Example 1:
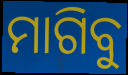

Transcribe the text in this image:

ମାଗିବୁ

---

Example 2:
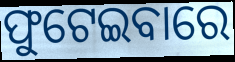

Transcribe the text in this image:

ଫୁଟେଇବାରେ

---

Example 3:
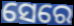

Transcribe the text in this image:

ସେରେ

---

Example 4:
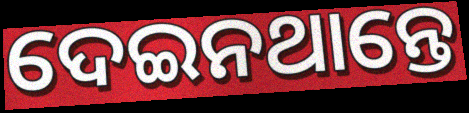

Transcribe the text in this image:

ଦେଇନଥାନ୍ତେ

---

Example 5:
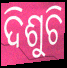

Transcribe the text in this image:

ଦିଶୁଚି